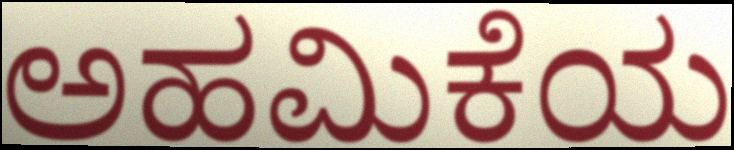
ಅಹಮಿಕೆಯ